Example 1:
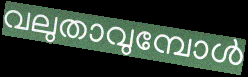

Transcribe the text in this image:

വലുതാവുമ്പോൾ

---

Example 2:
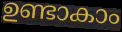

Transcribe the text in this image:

ഉണ്ടാകാം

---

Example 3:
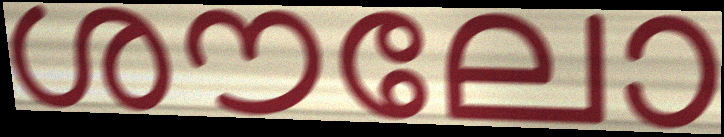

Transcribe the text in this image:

ശൗലോ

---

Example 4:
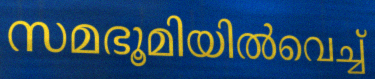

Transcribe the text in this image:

സമഭൂമിയിൽവെച്ച്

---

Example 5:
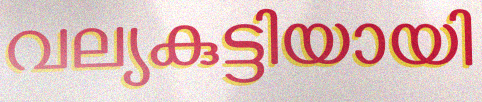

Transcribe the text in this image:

വല്യകുട്ടിയായി